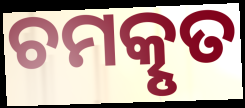
ଚମତ୍କୃତ